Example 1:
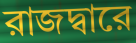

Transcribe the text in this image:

রাজদ্বারে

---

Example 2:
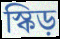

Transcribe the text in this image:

স্কিড়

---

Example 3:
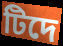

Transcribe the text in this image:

টিদে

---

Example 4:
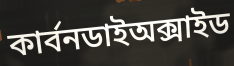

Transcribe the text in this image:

কার্বনডাইঅক্সাইড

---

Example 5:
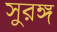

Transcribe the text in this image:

সুরঙ্গ